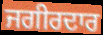
ਜਗੀਰਦਾਰ